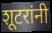
शूटरांनी